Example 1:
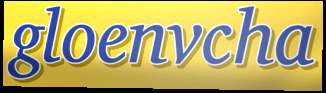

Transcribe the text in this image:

gloenvcha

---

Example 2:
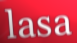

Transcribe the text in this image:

lasa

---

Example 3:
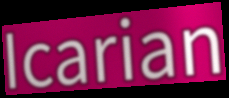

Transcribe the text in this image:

Icarian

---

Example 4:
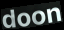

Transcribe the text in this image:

doon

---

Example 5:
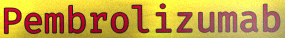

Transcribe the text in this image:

Pembrolizumab